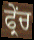
ਫ੍ਰੇੰਚ